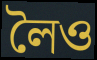
লৈও